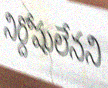
నిర్దోషులేనని